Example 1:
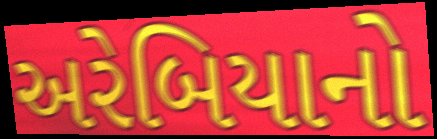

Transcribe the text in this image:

અરેબિયાનો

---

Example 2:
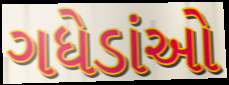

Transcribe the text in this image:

ગધેડાંઓ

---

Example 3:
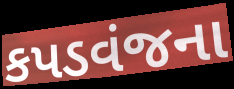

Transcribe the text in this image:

કપડવંજના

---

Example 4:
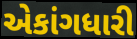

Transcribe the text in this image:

એકાંગધારી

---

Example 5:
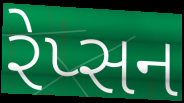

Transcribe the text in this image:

રેપ્સન